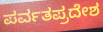
ಪರ್ವತಪ್ರದೇಶ